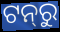
ଟନ୍‍ରୁ